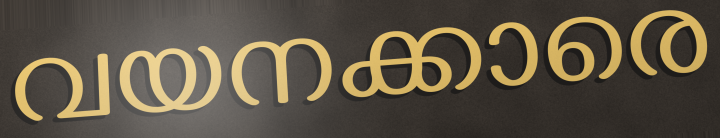
വയനക്കാരെ